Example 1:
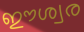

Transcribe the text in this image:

ഈശ്വര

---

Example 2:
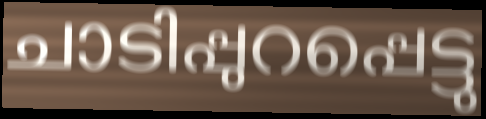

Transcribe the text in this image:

ചാടിപ്പുറപ്പെട്ടു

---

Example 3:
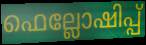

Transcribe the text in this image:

ഫെല്ലോഷിപ്പ്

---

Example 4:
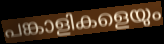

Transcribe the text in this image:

പങ്കാളികളെയും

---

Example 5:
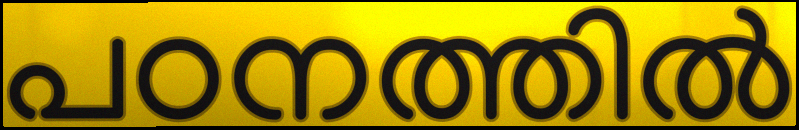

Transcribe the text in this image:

പഠനത്തിൽ